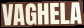
VAGHELA